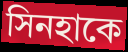
সিনহাকে